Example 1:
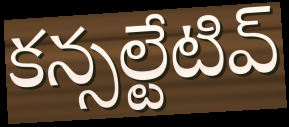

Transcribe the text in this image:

కన్సల్టేటివ్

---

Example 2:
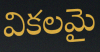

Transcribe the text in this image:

వికలమై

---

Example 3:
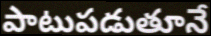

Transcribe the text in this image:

పాటుపడుతూనే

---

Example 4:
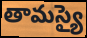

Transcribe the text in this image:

తామస్యై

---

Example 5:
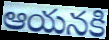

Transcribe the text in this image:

ఆయనకి